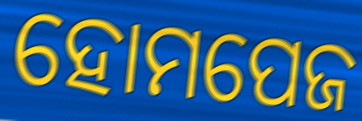
ହୋମପେଜ